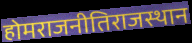
होमराजनीतिराजस्थान